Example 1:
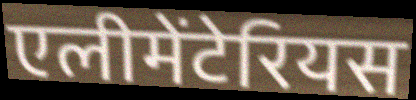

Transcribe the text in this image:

एलीमेंटेरियस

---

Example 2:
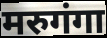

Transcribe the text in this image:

मरुगंगा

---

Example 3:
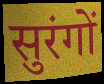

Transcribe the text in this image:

सुरंगों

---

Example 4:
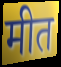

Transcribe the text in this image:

मीत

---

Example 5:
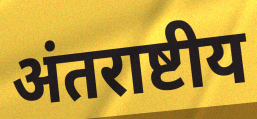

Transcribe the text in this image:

अंतराष्टीय